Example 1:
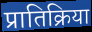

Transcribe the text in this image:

प्रातिक्रिया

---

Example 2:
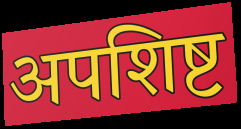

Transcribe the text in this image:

अपशिष्ट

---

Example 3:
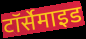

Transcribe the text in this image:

टॉर्सेमाइड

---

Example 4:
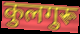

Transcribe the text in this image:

कुलगुरू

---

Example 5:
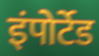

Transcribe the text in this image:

इंपोर्टेड